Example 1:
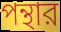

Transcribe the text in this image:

পন্থার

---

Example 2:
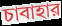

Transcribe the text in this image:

চাবাহার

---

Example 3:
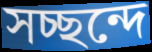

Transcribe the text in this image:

সচ্ছন্দে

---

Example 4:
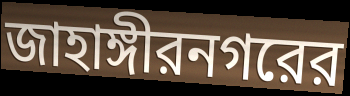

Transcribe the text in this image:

জাহাঙ্গীরনগরের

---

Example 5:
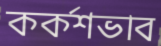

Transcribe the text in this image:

কর্কশভাব